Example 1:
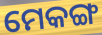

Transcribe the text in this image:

ମେକଙ୍ଗ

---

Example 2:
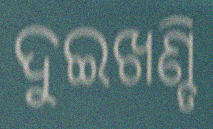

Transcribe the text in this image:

ଦୁଇଖଣ୍ଡି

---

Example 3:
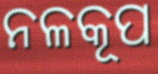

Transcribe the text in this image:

ନଳକୂପ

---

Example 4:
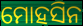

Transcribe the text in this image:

ମୋହସିନ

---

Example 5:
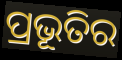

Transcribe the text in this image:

ପ୍ରଭୂତିର